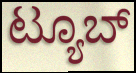
ಟ್ಯೂಬ್